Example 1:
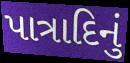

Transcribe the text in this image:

પાત્રાદિનું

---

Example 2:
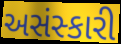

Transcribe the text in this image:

અસંસ્કારી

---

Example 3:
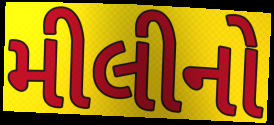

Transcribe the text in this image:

મીલીનો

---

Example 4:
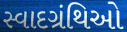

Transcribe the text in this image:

સ્વાદગ્રંથિઓ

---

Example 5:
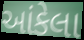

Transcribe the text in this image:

આંકેલા